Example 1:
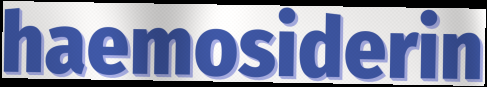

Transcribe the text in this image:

haemosiderin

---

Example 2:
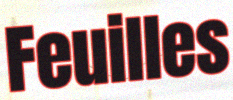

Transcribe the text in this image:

Feuilles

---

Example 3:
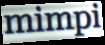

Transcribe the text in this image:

mimpi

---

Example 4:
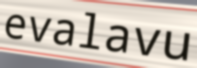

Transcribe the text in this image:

evalavu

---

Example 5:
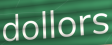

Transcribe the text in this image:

dollors